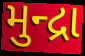
મુન્દ્રા